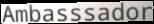
Ambasssador